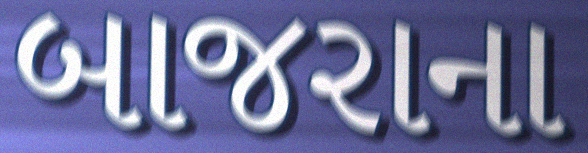
બાજરાના